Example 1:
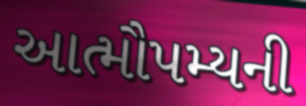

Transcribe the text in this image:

આત્મૌપમ્યની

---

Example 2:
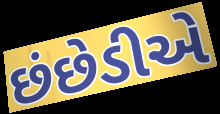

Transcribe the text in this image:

છંછેડીએ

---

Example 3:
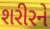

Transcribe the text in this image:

શરીરને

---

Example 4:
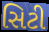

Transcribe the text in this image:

સિટી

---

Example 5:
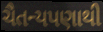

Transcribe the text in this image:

ચૈતન્યપણાથી